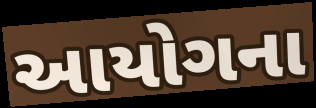
આયોગના